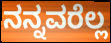
ನನ್ನವರೆಲ್ಲ